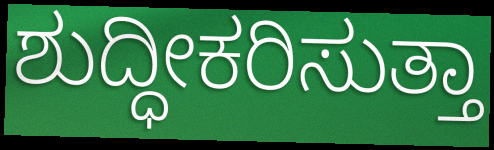
ಶುದ್ಧೀಕರಿಸುತ್ತಾ